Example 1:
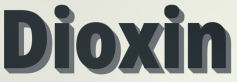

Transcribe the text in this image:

Dioxin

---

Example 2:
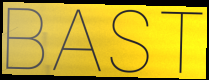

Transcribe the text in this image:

BAST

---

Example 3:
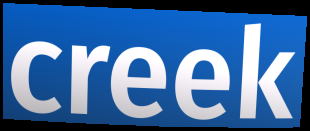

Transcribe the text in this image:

creek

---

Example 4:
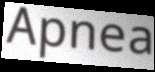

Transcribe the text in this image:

Apnea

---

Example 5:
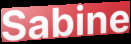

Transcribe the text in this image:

Sabine